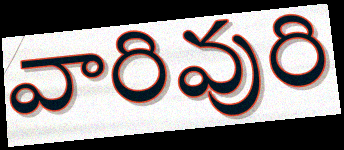
వారివురి